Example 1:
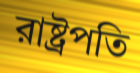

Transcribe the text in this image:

রাষ্ট্রপতি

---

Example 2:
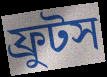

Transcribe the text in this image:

ফ্রুটস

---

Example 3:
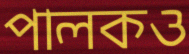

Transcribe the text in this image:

পালকও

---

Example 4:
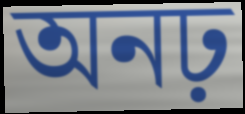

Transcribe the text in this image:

অনঢ়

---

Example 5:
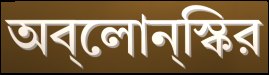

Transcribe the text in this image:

অব্‌লোন্‌স্কির